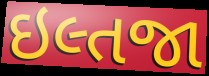
ઇલ્તજા